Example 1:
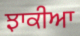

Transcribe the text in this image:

ਝਾਕੀਆ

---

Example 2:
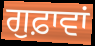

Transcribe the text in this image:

ਗੁਫ਼ਾਵਾਂ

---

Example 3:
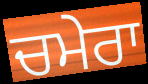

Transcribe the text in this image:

ਚਮੇਰਾ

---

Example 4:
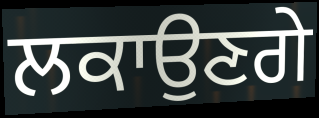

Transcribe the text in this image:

ਲਕਾਉਣਗੇ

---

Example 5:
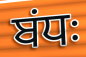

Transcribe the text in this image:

ਬਂਧਃ